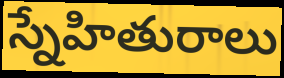
స్నేహితురాలు